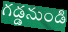
గడ్డనుండి